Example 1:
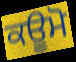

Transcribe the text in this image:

ਕਊਮੋ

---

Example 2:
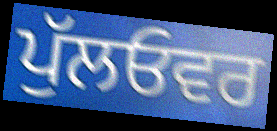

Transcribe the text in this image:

ਪੁੱਲਓਵਰ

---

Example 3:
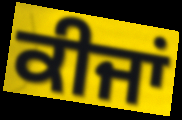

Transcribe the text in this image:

ਕੀਜਾਂ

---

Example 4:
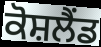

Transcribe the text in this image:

ਕੋਸ਼ਲੈਂਡ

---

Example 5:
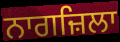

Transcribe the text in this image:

ਨਾਗਜ਼ਿਲਾ